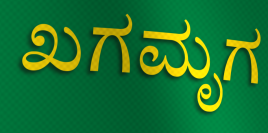
ಖಗಮೃಗ